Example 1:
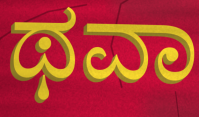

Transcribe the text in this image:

ಥವಾ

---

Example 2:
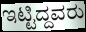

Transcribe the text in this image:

ಇಟ್ಟಿದ್ದವರು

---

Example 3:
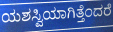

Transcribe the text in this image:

ಯಶಸ್ವಿಯಾಗಿತ್ತೆಂದರೆ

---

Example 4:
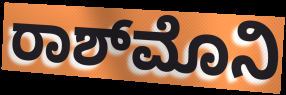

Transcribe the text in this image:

ರಾಶ್‌ಮೊನಿ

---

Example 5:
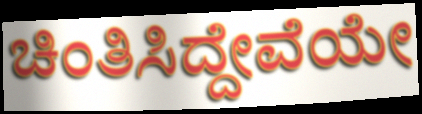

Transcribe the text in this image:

ಚಿಂತಿಸಿದ್ದೇವೆಯೇ